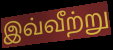
இவ்வீற்று